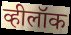
व्हीलॉक